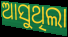
ଆସୁଥିଲା